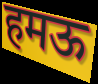
हमऊ